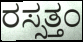
ರಸ್ಸತ್ತಂ